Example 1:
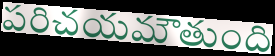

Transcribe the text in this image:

పరిచయమౌతుంది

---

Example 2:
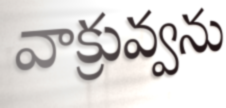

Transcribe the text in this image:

వాక్రువ్వను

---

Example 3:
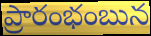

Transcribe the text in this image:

ప్రారంభంబున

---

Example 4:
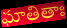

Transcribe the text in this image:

ఘాతితాః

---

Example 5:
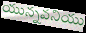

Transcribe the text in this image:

యున్నవనియు